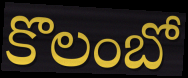
కొలంబో